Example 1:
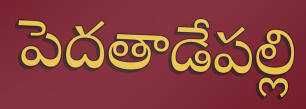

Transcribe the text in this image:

పెదతాడేపల్లి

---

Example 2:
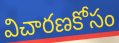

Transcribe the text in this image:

విచారణకోసం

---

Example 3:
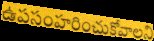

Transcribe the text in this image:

ఉపసంహరించుకోవాలని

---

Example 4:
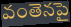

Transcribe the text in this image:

వంతెనపై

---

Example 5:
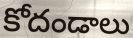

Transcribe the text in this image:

కోదండాలు